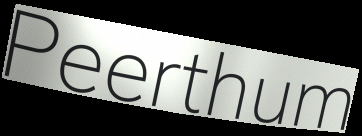
Peerthum